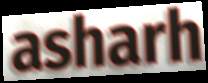
asharh